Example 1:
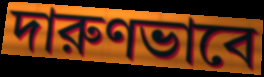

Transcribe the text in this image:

দারুণভাবে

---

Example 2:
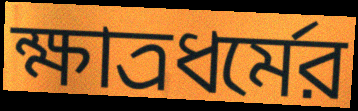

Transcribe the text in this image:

ক্ষাত্রধর্মের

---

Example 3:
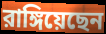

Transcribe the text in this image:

রাঙ্গিয়েছেন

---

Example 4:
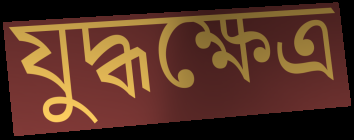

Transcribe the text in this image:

যুদ্ধক্ষেত্র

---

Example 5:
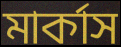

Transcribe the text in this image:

মার্কাস